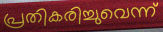
പ്രതികരിച്ചുവെന്ന്